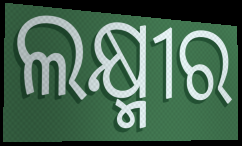
ଲକ୍ଷ୍ମୀର